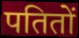
पतितों